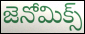
జెనోమిక్స్